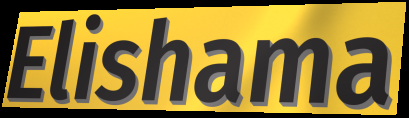
Elishama